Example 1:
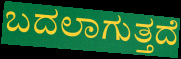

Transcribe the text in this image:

ಬದಲಾಗುತ್ತದೆ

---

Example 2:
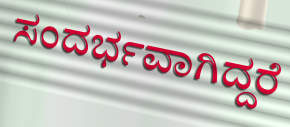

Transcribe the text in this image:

ಸಂದರ್ಭವಾಗಿದ್ದರೆ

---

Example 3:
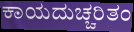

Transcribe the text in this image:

ಕಾಯದುಚ್ಚರಿತಂ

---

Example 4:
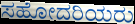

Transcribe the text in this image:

ಸಹೋದರಿಯರು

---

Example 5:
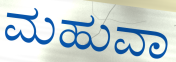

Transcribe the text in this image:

ಮಹುವಾ